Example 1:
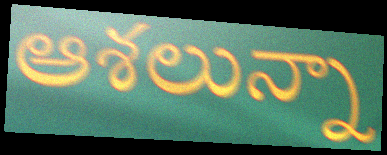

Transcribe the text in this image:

ఆశలున్నా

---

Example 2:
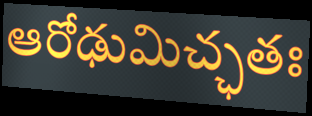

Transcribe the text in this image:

ఆరోఢుమిచ్ఛతః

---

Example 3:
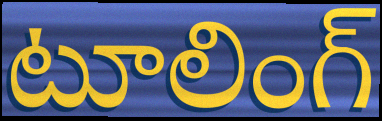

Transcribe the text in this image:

టూలింగ్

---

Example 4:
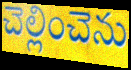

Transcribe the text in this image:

చెల్లించెను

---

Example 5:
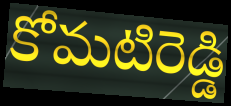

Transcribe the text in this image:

కోమటిరెడ్డి